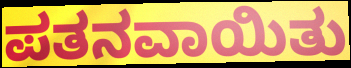
ಪತನವಾಯಿತು